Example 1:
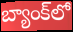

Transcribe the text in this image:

బ్యాంక్‌లో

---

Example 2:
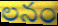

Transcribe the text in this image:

లనం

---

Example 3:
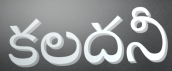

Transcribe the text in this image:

కలదనీ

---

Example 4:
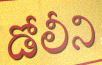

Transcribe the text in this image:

డోలీని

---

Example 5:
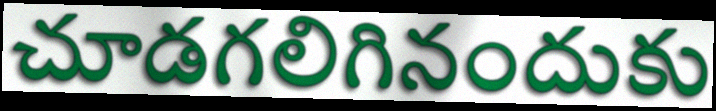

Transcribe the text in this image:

చూడగలిగినందుకు